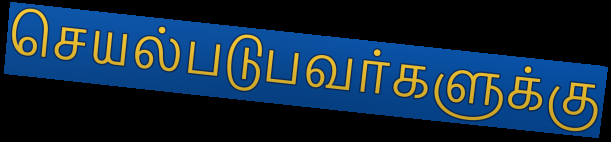
செயல்படுபவர்களுக்கு